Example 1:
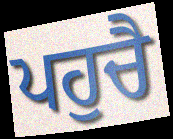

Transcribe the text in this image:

ਪਹੁਚੈ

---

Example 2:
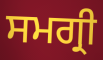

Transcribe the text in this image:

ਸਮਗ੍ਰੀ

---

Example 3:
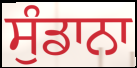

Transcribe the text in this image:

ਸੁੰਡਾਨਾ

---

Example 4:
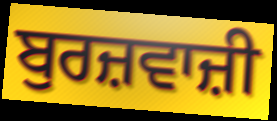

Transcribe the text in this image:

ਬੁਰਜ਼ਵਾਜ਼ੀ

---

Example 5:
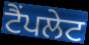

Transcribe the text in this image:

ਟੈਂਪਲੇਟ